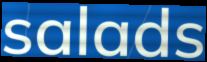
salads